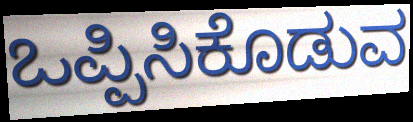
ಒಪ್ಪಿಸಿಕೊಡುವ